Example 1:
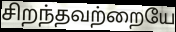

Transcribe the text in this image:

சிறந்தவற்றையே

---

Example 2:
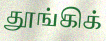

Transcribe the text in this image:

தூங்கிக்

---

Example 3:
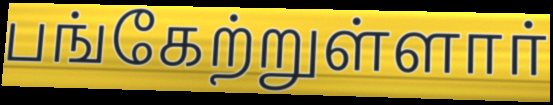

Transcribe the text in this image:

பங்கேற்றுள்ளார்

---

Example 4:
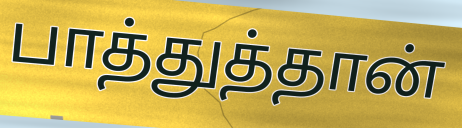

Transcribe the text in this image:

பாத்துத்தான்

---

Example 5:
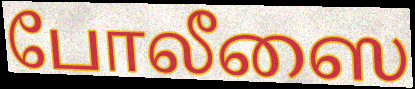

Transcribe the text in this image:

போலீஸை